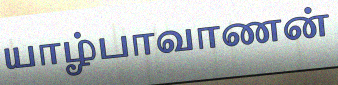
யாழ்பாவாணன்